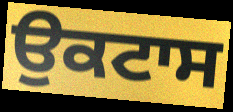
ਉਕਟਾਸ